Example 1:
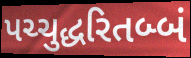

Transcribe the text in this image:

પચ્ચુદ્ધરિતબ્બં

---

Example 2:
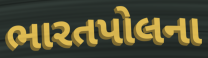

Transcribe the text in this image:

ભારતપોલના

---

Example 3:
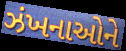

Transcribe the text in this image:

ઝંખનાઓને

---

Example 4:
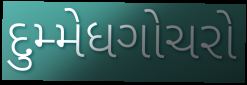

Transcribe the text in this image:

દુમ્મેધગોચરો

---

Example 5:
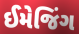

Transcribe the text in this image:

ઈમેજિંગ